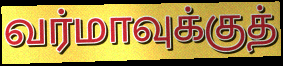
வர்மாவுக்குத்